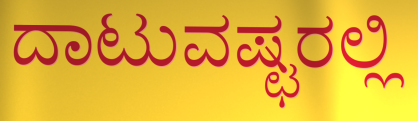
ದಾಟುವಷ್ಟರಲ್ಲಿ